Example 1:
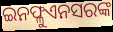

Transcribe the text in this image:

ଇନଫ୍ଳୁଏନସରଙ୍କ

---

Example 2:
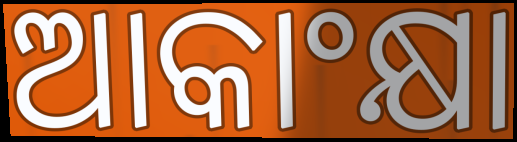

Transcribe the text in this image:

ଆକାଂକ୍ଷା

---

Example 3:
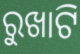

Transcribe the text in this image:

ରୁଖାଟି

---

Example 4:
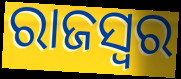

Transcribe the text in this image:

ରାଜସ୍ବର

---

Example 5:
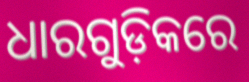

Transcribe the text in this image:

ଧାରଗୁଡ଼ିକରେ